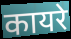
कायरे